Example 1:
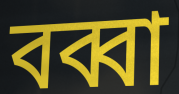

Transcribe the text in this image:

বব্বা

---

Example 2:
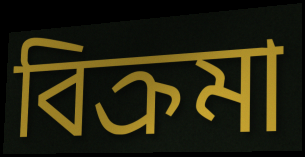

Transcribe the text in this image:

বিক্রমা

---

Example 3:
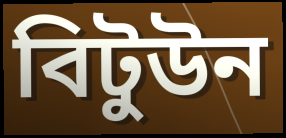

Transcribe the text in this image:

বিটুউন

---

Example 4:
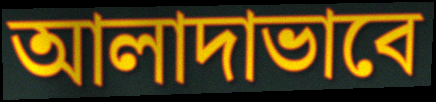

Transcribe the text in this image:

আলাদাভাবে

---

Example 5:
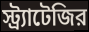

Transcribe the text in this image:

স্ট্র্যাটেজির